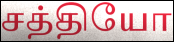
சத்தியோ